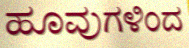
ಹೂವುಗಳಿಂದ